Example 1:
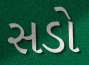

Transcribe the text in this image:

સડો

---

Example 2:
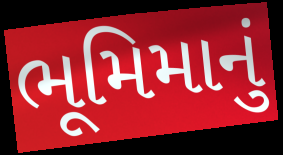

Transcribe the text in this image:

ભૂમિમાનું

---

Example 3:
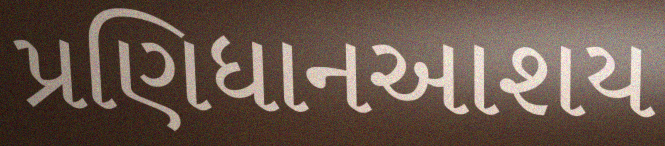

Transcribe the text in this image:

પ્રણિધાનઆશય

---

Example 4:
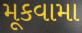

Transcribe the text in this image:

મૂકવામા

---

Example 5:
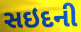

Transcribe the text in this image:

સઇદની